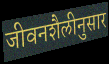
जीवनशैलीनुसार